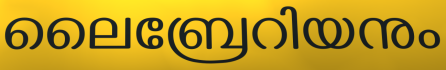
ലൈബ്രേറിയനും